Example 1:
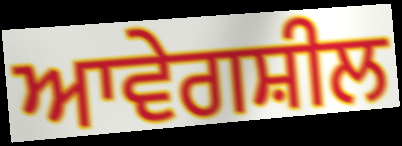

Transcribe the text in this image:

ਆਵੇਗਸ਼ੀਲ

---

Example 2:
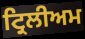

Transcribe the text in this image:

ਟ੍ਰਿਲੀਅਮ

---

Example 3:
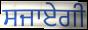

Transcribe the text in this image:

ਸਜਾਏਗੀ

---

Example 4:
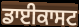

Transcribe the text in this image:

ਡਾਈਕਾਸਟ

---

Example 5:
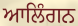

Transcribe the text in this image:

ਆਲਿੰਗਨ